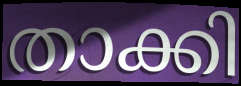
താക്കി